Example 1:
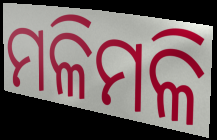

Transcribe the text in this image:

ମଳିମଳି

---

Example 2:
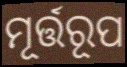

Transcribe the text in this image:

ମୂର୍ତ୍ତରୂପ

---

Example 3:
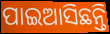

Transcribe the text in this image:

ପାଇଆସିଛନ୍ତି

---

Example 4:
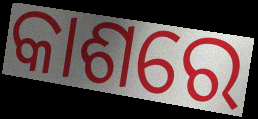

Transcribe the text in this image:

କାଶରେ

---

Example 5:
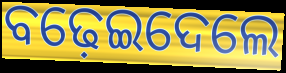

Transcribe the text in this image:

ବଢ଼େଇଦେଲେ